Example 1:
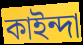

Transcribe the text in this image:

কাইন্দা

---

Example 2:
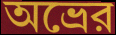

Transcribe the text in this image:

অভ্রের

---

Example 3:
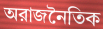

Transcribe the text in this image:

অরাজনৈতিক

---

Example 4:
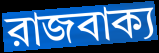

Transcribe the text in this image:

রাজবাক্য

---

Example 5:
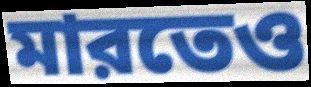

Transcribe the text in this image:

মারতেও